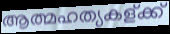
ആത്മഹത്യകള്ക്ക്